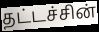
தட்டச்சின்